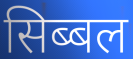
सिब्बल